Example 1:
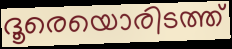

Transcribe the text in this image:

ദൂരെയൊരിടത്ത്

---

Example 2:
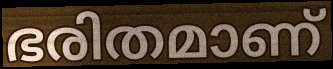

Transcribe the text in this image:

ഭരിതമാണ്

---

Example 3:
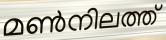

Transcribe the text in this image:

മൺനിലത്ത്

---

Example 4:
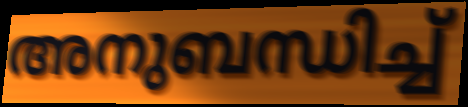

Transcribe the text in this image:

അനുബന്ധിച്ച്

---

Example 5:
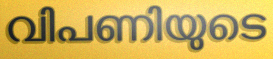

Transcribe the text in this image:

വിപണിയുടെ